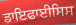
ਡਾਇਫਾਈਸਿਸ